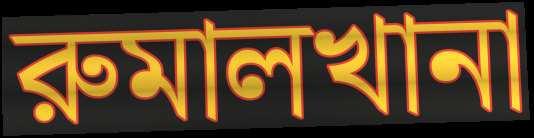
রুমালখানা